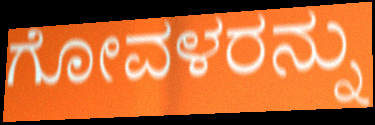
ಗೋವಳರನ್ನು